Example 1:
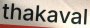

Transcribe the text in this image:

thakaval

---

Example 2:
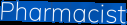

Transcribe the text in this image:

Pharmacist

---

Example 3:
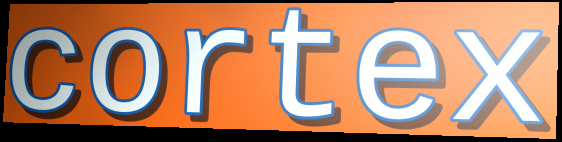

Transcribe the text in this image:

cortex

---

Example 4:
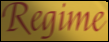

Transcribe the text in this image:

Regime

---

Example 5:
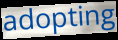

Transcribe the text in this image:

adopting